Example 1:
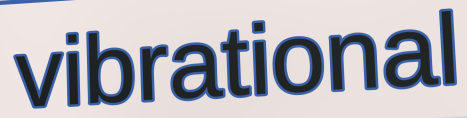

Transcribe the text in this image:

vibrational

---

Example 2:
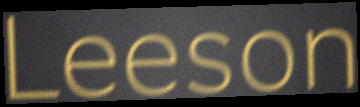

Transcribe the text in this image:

Leeson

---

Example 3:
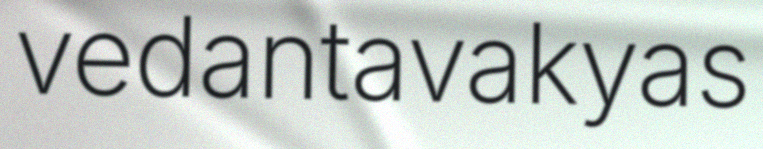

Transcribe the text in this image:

vedantavakyas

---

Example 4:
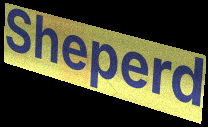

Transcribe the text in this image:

Sheperd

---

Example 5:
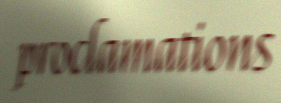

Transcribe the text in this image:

proclamations